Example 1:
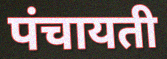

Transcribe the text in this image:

पंचायती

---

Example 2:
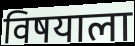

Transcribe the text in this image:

विषयाला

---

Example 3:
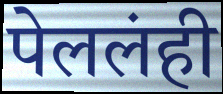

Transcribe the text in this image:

पेललंही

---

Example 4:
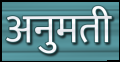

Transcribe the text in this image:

अनुमती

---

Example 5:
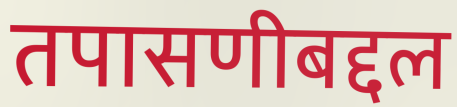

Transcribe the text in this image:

तपासणीबद्दल